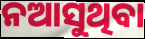
ନଆସୁଥିବା